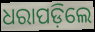
ଧରାପଡ଼ିଲେ